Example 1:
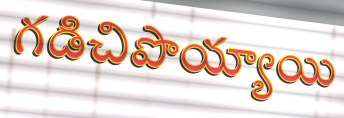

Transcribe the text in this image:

గడిచిపొయ్యాయి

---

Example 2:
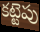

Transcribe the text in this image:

కట్టెపు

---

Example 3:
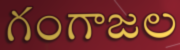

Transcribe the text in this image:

గంగాజల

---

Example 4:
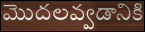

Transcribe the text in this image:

మొదలవ్వడానికి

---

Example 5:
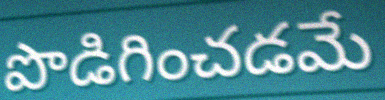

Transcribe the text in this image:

పొడిగించడమే